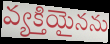
వ్యక్తియైనను